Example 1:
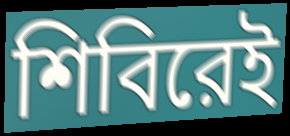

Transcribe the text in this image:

শিবিরেই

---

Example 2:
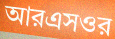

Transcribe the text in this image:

আরএসওর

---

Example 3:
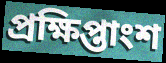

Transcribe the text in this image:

প্রক্ষিপ্তাংশ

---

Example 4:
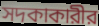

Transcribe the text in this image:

সদকাকারীর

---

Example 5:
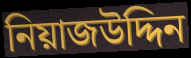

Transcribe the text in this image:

নিয়াজউদ্দিন